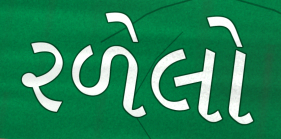
રળેલો